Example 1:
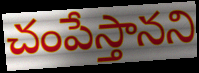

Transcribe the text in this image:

చంపేస్తానని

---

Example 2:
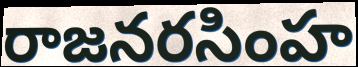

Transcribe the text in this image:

రాజనరసింహ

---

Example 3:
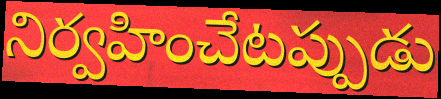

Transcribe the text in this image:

నిర్వహించేటప్పుడు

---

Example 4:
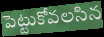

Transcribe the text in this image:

పెట్టుకోవలసిన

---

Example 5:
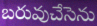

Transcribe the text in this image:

బరువుచేసెను